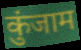
कुंजाम